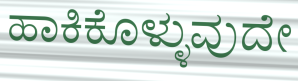
ಹಾಕಿಕೊಳ್ಳುವುದೇ